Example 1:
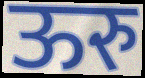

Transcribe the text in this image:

ऊरु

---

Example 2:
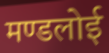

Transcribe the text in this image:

मण्डलोई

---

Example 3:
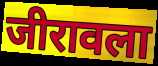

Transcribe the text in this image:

जीरावला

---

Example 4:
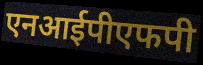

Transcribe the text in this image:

एनआईपीएफपी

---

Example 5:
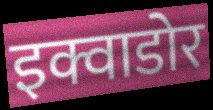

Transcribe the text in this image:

इक्वाडोर